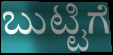
ಬುಟ್ಟಿಗೆ